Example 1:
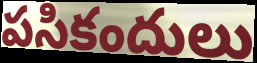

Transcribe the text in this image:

పసికందులు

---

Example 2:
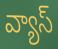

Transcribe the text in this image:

వ్యాస్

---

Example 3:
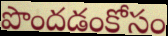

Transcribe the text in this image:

పొందడంకోసం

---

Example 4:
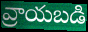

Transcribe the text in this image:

వ్రాయబడి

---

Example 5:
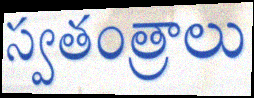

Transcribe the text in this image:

స్వతంత్రాలు